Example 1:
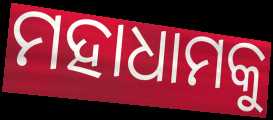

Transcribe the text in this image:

ମହାଧାମକୁ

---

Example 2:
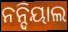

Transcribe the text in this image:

ନନ୍ଦିୟାଲ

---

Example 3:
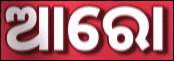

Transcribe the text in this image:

ଆରୋ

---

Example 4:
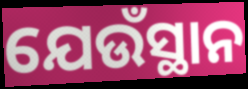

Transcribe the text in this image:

ଯେଉଁସ୍ଥାନ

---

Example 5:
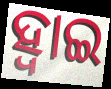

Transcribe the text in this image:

ହ୍ଵାଇ